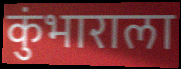
कुंभाराला